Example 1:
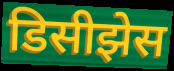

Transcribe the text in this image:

डिसीझेस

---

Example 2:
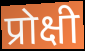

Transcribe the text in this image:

प्रोक्षी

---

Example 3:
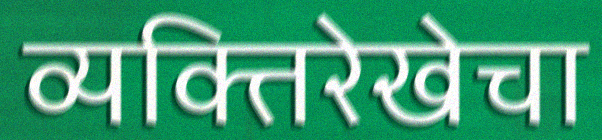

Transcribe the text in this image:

व्यक्तिरेखेचा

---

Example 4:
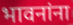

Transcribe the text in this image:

भावनांना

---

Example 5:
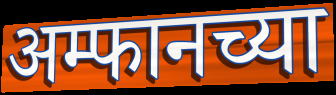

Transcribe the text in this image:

अम्फानच्या